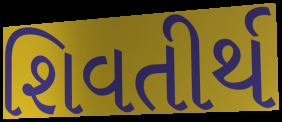
શિવતીર્થ